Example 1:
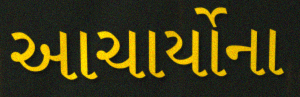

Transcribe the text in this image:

આચાર્યોના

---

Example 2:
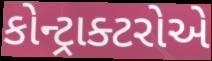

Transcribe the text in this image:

કોન્ટ્રાક્ટરોએ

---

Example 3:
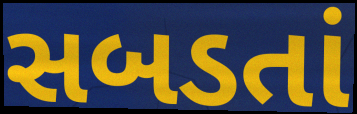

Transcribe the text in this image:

સબડતાં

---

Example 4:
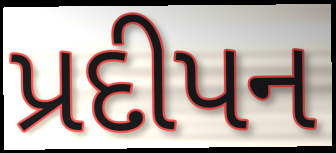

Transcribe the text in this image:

પ્રદીપન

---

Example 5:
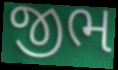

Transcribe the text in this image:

જીભ